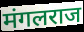
मंगलराज